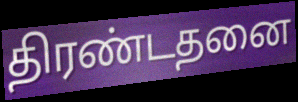
திரண்டதனை